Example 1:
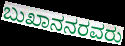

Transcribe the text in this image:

ಬುಖಾನನರವರು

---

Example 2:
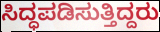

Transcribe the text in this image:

ಸಿದ್ಧಪಡಿಸುತ್ತಿದ್ದರು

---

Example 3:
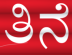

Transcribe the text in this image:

ತಿನೆ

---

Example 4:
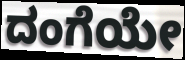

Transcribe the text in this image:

ದಂಗೆಯೇ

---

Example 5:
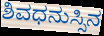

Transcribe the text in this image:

ಶಿವಧನುಸ್ಸಿನ